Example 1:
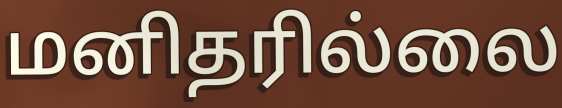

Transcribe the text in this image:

மனிதரில்லை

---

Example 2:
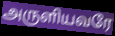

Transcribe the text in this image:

அருளியவரே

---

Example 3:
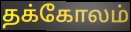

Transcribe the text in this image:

தக்கோலம்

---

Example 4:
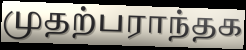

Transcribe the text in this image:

முதற்பராந்தக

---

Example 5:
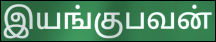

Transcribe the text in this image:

இயங்குபவன்